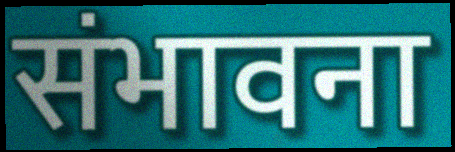
संभावना